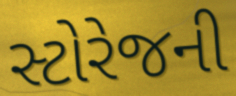
સ્ટોરેજની